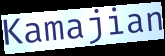
Kamajian